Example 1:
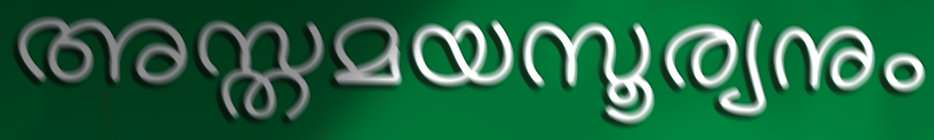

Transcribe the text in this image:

അസ്തമയസൂര്യനും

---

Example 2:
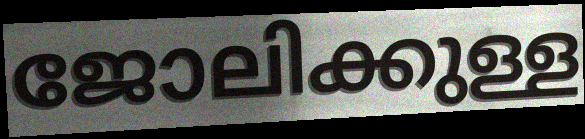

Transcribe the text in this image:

ജോലിക്കുള്ള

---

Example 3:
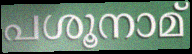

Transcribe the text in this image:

പശൂനാമ്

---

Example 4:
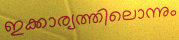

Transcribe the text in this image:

ഇക്കാര്യത്തിലൊന്നും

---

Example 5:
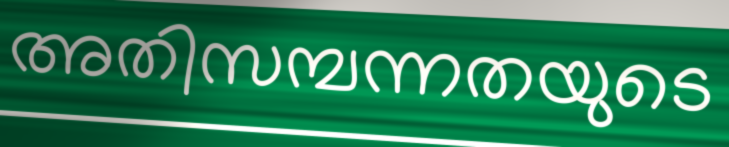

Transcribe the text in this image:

അതിസമ്പന്നതയുടെ